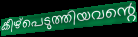
കീഴ്പെടുത്തിയവന്റെ